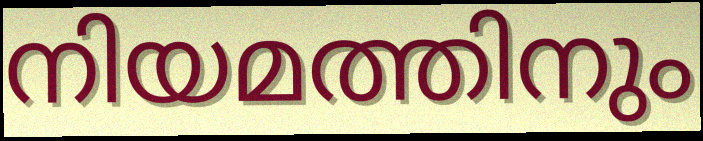
നിയമത്തിനും